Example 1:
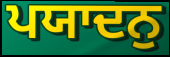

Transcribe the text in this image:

ਪਯਾਦਨੁ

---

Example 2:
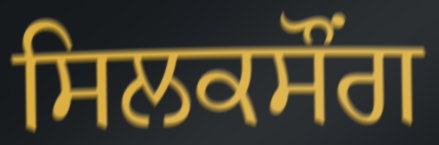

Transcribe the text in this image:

ਸਿਲਕਸੌਂਗ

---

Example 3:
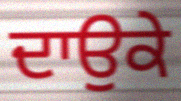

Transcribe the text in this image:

ਦਾਉਕੇ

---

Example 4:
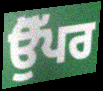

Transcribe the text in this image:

ਉੋੱਪਰ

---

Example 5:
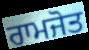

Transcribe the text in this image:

ਰਾਮਜੋਤ